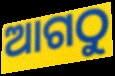
ଆଗଠୁ